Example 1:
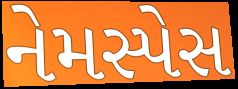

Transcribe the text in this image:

નેમસ્પેસ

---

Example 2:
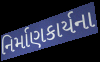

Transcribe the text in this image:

નિર્માણકાર્યના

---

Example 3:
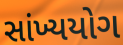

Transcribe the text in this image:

સાંખ્યયોગ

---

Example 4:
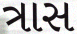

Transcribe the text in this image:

ત્રાસ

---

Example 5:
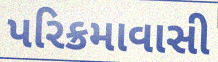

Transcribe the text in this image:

પરિક્રમાવાસી